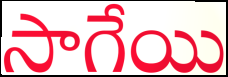
సాగేయి